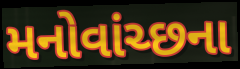
મનોવાંચ્છના